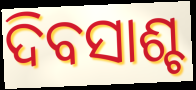
ଦିବସାଶ୍ଚ